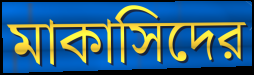
মাকাসিদের